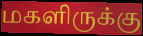
மகளிருக்கு